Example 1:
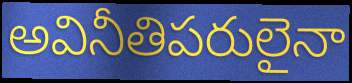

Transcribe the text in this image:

అవినీతిపరులైనా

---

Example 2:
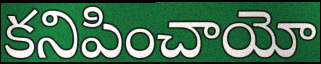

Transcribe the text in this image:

కనిపించాయో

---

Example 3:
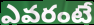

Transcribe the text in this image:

ఎవరంటే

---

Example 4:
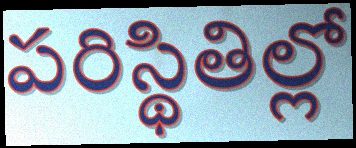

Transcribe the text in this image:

పరిస్థితిల్లో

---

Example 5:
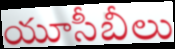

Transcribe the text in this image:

యూసీబీలు